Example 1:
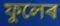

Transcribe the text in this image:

ফুলেৰ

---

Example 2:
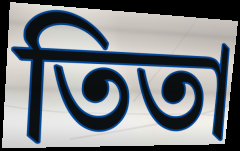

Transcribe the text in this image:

তিতা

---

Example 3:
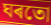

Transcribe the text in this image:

ঘৰতো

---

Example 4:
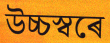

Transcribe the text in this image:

উচ্চস্বৰে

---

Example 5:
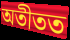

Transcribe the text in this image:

অতীতত